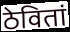
ठेवितां